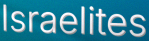
Israelites